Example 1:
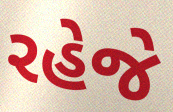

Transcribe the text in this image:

રહેજે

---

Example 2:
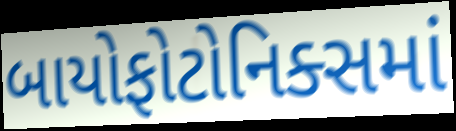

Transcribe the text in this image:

બાયોફોટોનિક્સમાં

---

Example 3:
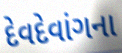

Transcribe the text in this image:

દેવદેવાંગના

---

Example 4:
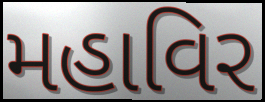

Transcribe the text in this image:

મહાવિર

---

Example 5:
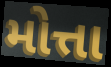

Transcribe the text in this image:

મોત્તા